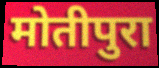
मोतीपुरा